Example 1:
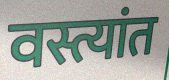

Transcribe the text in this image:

वस्त्यांत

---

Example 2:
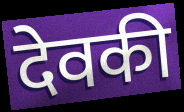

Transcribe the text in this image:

देवकी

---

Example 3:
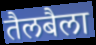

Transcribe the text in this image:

तैलबैला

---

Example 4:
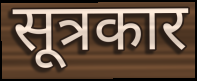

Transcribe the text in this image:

सूत्रकार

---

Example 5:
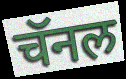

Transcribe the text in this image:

चॅनल